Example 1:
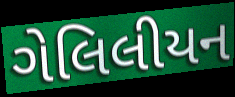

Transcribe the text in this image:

ગેલિલીયન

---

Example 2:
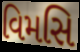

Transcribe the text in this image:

વિમસિ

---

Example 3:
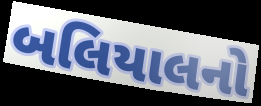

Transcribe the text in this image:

બલિયાલનો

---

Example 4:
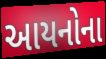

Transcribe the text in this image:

આયનોના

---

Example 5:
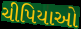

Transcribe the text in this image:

ચીપિયાઓ